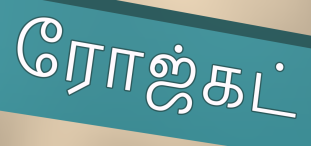
ரோஜ்கட்